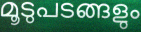
മൂടുപടങ്ങളും